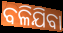
ବଳିଯିବା